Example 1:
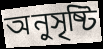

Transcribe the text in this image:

অনুসৃষ্টি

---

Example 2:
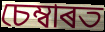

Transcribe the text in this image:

চেম্বাৰত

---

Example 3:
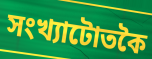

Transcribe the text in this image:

সংখ্যাটোতকৈ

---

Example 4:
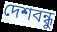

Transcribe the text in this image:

দেশবন্ধু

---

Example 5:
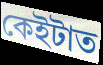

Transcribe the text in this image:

কেইটাত